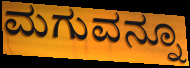
ಮಗುವನ್ನೂ